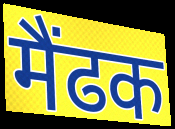
मैंढक